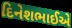
દિનેશભાઈએ